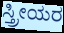
ಸ್ತ್ರೀಯರ